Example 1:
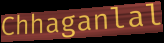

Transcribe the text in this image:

Chhaganlal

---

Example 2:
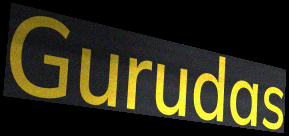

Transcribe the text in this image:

Gurudas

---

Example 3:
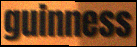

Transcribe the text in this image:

guinness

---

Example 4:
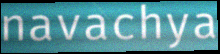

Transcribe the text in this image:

navachya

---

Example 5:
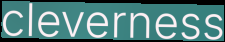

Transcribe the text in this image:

cleverness